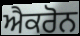
ਐਕਰੋਨ